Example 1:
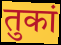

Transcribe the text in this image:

तुकां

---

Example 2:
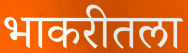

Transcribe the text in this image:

भाकरीतला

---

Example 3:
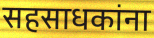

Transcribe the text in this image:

सहसाधकांना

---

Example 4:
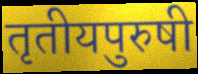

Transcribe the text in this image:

तृतीयपुरुषी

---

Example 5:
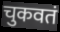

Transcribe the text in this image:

चुकवतं